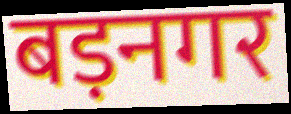
बड़नगर